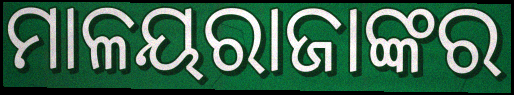
ମାଳୟରାଜାଙ୍କର